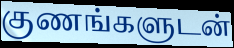
குணங்களுடன்